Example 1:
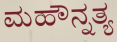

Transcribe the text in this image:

ಮಹೌನ್ನತ್ಯ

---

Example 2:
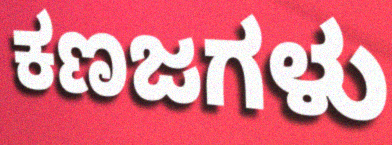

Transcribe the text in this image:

ಕಣಜಗಳು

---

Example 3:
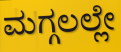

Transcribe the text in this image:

ಮಗ್ಗಲಲ್ಲೇ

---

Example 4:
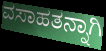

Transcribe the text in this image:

ವಸಾಹತನ್ನಾಗಿ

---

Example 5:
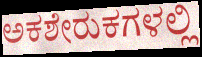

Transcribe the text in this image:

ಅಕಶೇರುಕಗಳಲ್ಲಿ